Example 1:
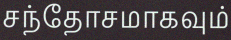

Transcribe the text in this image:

சந்தோசமாகவும்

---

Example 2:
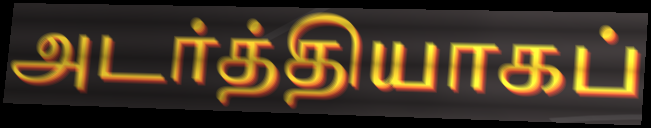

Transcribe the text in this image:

அடர்த்தியாகப்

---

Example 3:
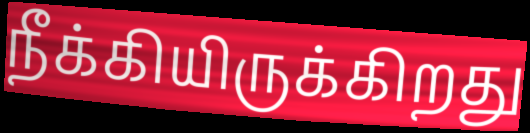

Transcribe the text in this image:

நீக்கியிருக்கிறது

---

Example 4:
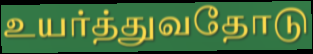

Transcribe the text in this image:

உயர்த்துவதோடு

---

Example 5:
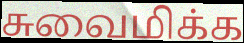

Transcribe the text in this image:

சுவைமிக்க